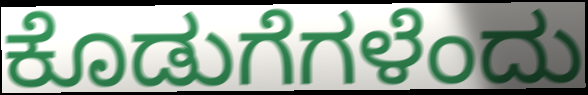
ಕೊಡುಗೆಗಳೆಂದು